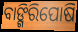
ବାଙ୍ଗିରିପୋଷି